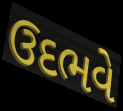
ઉદભવે